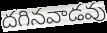
దగినవాడవు